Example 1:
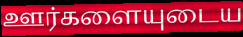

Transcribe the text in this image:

ஊர்களையுடைய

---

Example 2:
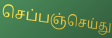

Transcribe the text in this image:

செப்பஞ்செய்து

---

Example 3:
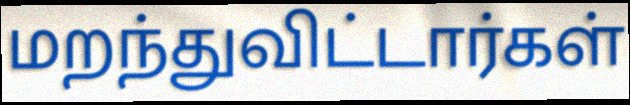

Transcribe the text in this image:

மறந்துவிட்டார்கள்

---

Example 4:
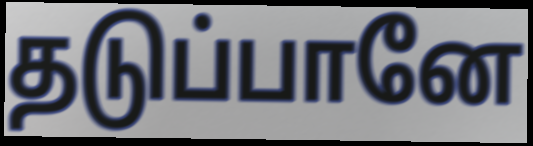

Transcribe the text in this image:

தடுப்பானே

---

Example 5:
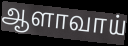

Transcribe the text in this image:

ஆளாவாய்